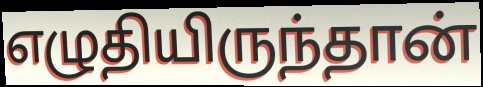
எழுதியிருந்தான்